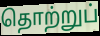
தொற்றுப்